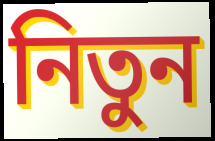
নিতুন